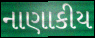
નાણાકીય